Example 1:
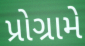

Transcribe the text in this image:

પ્રોગ્રામે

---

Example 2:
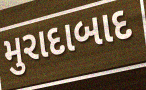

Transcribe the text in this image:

મુરાદાબાદ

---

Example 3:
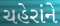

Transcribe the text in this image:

ચહેરાંને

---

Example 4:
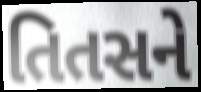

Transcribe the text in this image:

તિતસને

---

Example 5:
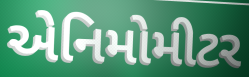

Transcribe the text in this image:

એનિમોમીટર